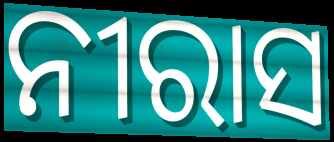
ନୀରାସ